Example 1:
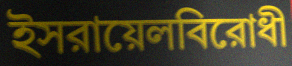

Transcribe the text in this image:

ইসরায়েলবিরোধী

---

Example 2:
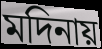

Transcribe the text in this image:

মদিনায়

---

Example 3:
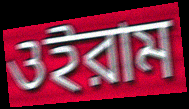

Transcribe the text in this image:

ওইরাম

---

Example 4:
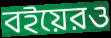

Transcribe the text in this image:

বইয়েরও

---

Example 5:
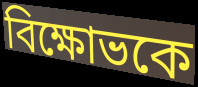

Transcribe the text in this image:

বিক্ষোভকে